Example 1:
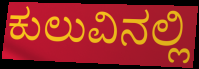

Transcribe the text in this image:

ಕುಲುವಿನಲ್ಲಿ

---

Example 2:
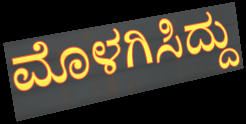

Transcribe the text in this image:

ಮೊಳಗಿಸಿದ್ದು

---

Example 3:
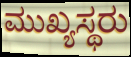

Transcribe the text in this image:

ಮುಖ್ಯಸ್ಥರು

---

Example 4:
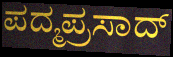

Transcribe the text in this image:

ಪದ್ಮಪ್ರಸಾದ್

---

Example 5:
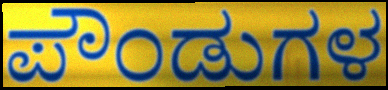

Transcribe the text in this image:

ಪೌಂಡುಗಳ